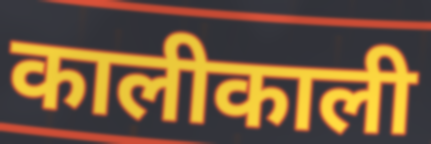
कालीकाली